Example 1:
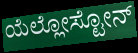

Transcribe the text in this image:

ಯೆಲ್ಲೋಸ್ಟೋನ್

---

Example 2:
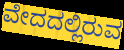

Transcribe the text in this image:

ವೇದದಲ್ಲಿರುವ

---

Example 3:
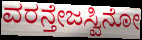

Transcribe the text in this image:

ವರನ್ತೇಜಸ್ವಿನೋ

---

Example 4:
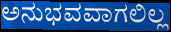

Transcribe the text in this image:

ಅನುಭವವಾಗಲಿಲ್ಲ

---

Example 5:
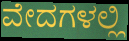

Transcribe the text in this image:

ವೇದಗಳಲ್ಲಿ